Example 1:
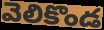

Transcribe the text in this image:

వెలికొండ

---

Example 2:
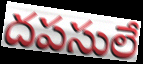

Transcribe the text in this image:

దపసులే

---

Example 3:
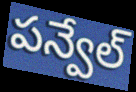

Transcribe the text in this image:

పన్వేల్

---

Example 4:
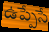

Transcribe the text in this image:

ఉప్పేసే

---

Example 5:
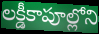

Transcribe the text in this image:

లక్డీకాపూల్లోని